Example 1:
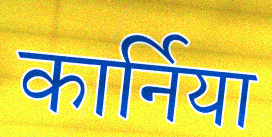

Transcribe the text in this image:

कार्निया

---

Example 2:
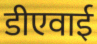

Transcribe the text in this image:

डीएवाई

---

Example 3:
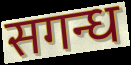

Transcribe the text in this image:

सगन्ध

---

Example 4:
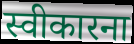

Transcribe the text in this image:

स्वीकारना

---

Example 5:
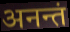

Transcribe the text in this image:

अनन्तं